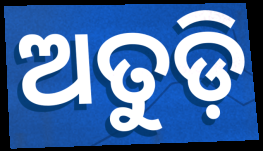
ଅତୁଡ଼ି